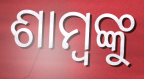
ଶାମ୍ବଙ୍କୁ